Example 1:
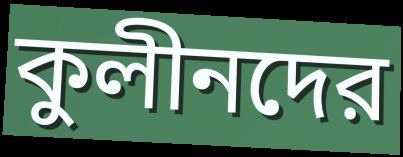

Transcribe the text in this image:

কুলীনদের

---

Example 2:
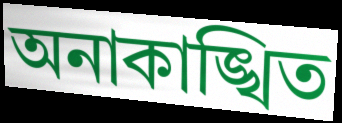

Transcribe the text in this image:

অনাকাঙ্খিত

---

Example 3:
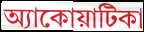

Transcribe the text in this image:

অ্যাকোয়াটিকা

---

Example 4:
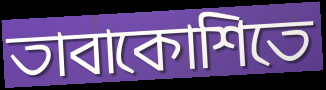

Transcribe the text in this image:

তাবাকোশিতে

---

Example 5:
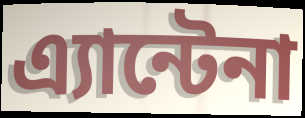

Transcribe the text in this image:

এ্যান্টেনা